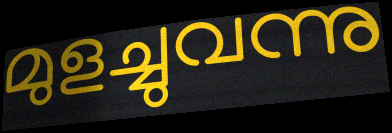
മുളച്ചുവന്നു